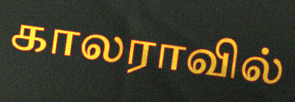
காலராவில்